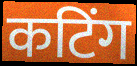
कटिंग